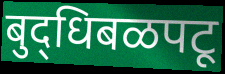
बुद्धिबळपटू